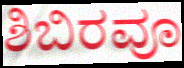
ಶಿಬಿರವೂ